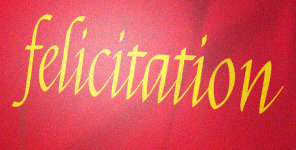
felicitation